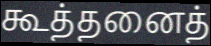
கூத்தனைத்